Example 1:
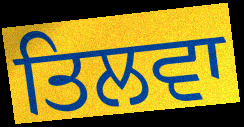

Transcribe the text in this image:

ਤਿਲਵਾ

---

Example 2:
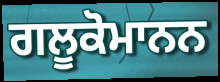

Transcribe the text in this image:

ਗਲੂਕੋਮਾਨਨ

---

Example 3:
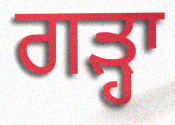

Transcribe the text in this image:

ਗੜ੍ਹਾ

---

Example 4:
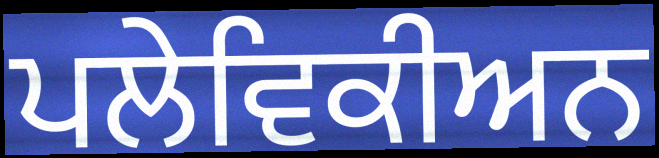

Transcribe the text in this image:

ਪਲੇਵਿਕੀਅਨ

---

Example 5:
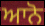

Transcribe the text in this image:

ਆਨੋ